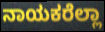
ನಾಯಕರೆಲ್ಲಾ